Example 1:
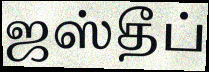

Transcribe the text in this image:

ஜஸ்தீப்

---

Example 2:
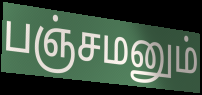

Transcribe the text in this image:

பஞ்சமனும்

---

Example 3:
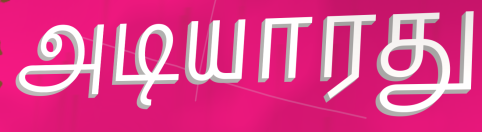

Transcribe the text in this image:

அடியாரது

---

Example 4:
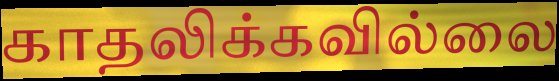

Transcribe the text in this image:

காதலிக்கவில்லை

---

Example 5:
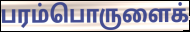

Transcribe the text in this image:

பரம்பொருளைக்